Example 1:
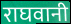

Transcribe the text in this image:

राघवानी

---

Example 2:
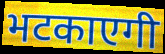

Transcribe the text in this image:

भटकाएगी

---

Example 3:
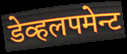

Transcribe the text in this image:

डेव्हलपमेन्ट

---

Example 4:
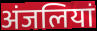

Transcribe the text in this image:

अंजलियां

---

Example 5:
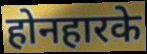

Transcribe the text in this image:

होनहारके